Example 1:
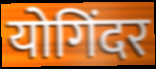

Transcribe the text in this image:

योगिंदर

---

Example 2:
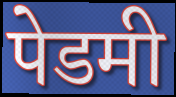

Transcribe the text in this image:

पेडमी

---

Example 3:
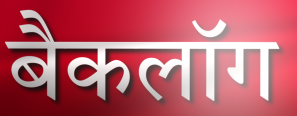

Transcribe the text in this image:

बैकलॉग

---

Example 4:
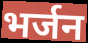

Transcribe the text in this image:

भर्जन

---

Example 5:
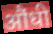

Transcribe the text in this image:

औंधी